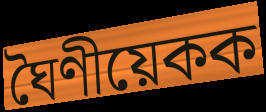
ঘৈণীয়েকক